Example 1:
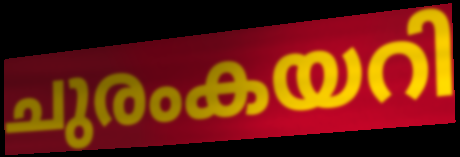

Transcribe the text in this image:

ചുരംകയറി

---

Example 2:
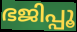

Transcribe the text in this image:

ഭജിപ്പൂ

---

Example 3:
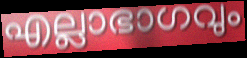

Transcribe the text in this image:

എല്ലാഭാഗവും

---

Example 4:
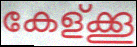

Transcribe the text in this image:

കേള്ക്കൂ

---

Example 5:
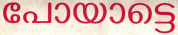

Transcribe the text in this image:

പോയാട്ടെ